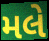
મલે